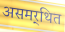
असमर्थित